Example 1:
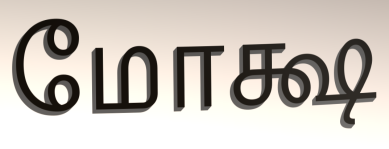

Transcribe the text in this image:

மோக்ஷ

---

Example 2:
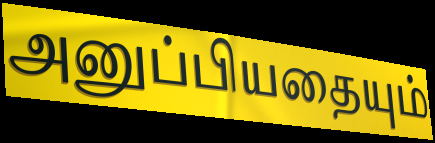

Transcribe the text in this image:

அனுப்பியதையும்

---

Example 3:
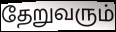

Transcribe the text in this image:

தேறுவரும்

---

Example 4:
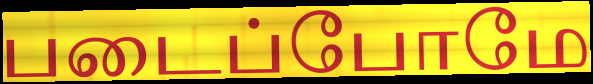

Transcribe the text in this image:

படைப்போமே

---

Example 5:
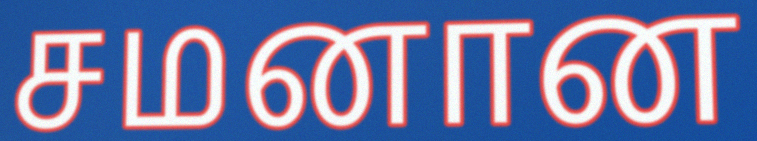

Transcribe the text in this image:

சமனான